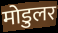
मोडुलर